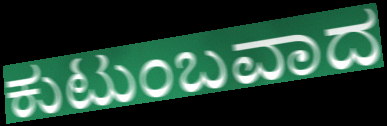
ಕುಟುಂಬವಾದ